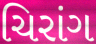
ચિરાંગ